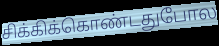
சிக்கிக்கொண்டதுபோல